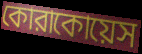
কোরাকোয়েস